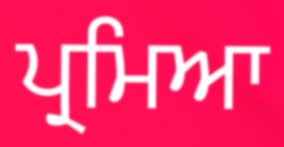
ਪ੍ਰਮਿਆ